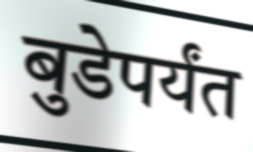
बुडेपर्यंत